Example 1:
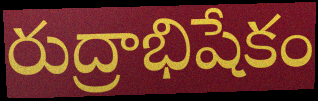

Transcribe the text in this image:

రుద్రాభిషేకం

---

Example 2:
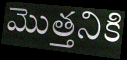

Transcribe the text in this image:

మొత్తనికి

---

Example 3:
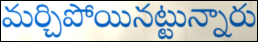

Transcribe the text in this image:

మర్చిపోయినట్టున్నారు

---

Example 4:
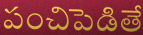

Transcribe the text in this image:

పంచిపెడితే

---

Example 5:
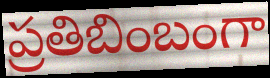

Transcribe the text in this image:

ప్రతిబింబంగా